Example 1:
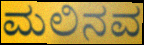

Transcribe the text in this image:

ಮಲಿನವ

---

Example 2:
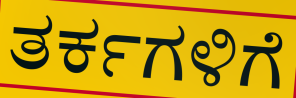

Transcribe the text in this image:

ತರ್ಕಗಳಿಗೆ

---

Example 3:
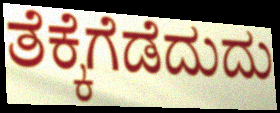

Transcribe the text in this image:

ತೆಕ್ಕೆಗೆಡೆದುದು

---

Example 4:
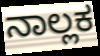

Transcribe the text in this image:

ನಾಲ್ಲಕ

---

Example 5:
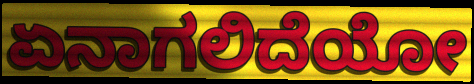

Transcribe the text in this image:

ಏನಾಗಲಿದೆಯೋ